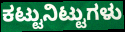
ಕಟ್ಟುನಿಟ್ಟುಗಳು